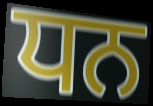
ਧਨ